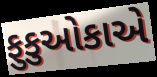
ફુકુઓકાએ